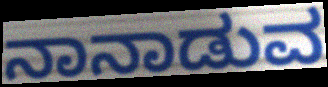
ನಾನಾಡುವ